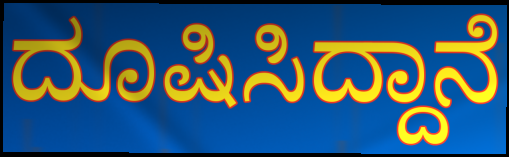
ದೂಷಿಸಿದ್ದಾನೆ